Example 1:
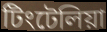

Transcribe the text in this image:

টিংটেলিয়া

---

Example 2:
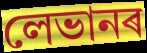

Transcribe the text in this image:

লেভানৰ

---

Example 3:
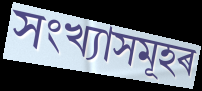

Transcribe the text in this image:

সংখ্যাসমূহৰ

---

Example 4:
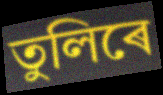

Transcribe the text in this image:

তুলিৰে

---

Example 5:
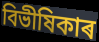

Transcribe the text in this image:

বিভীষিকাৰ